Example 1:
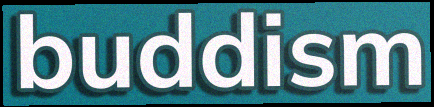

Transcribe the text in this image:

buddism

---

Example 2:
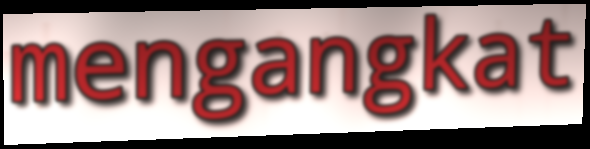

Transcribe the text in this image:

mengangkat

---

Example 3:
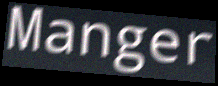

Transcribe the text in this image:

Manger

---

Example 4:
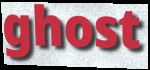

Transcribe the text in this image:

ghost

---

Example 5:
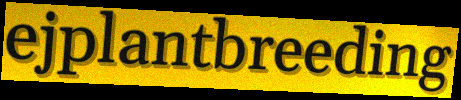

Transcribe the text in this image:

ejplantbreeding